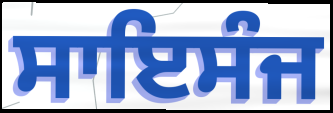
ਸਾਇਸੰਜ